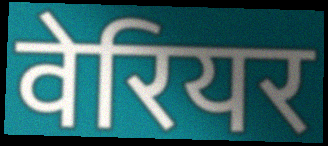
वेरियर